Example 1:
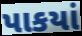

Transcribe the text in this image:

પાકયાં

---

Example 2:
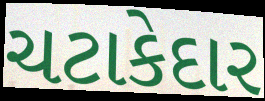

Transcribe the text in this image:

ચટાકેદાર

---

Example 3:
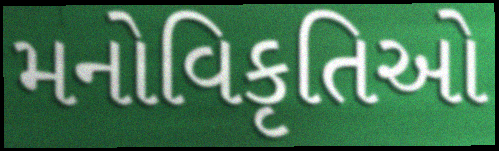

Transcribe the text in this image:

મનોવિકૃતિઓ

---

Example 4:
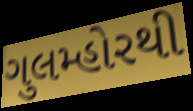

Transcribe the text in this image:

ગુલમ્હોરથી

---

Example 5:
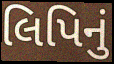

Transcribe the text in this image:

લિપિનું